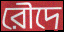
রৌদে